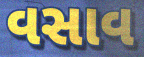
વસાવ